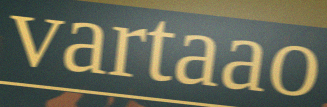
vartaao